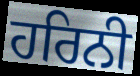
ਹਰਿਨੀ